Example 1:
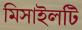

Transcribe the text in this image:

মিসাইলটি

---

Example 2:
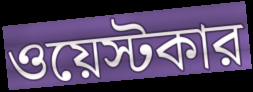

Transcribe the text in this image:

ওয়েস্টকার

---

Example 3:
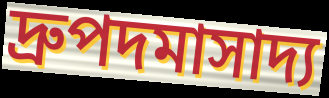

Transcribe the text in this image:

দ্রুপদমাসাদ্য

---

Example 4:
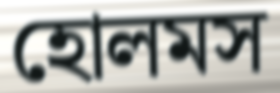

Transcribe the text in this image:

হোলমস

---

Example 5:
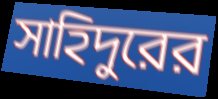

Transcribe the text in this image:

সাহিদুরের